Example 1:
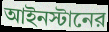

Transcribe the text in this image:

আইনস্টানের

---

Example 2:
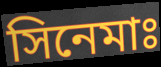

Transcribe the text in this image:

সিনেমাঃ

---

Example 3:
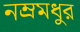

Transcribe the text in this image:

নম্রমধুর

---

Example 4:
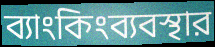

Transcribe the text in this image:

ব্যাংকিংব্যবস্থার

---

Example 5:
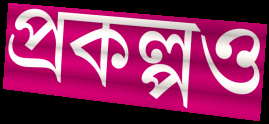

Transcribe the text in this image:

প্রকল্পও